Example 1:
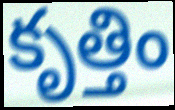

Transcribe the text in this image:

కృత్తిం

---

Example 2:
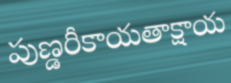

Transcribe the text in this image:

పుణ్డరీకాయతాక్షాయ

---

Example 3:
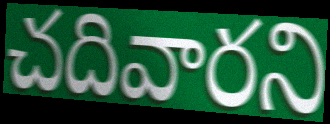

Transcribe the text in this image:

చదివారని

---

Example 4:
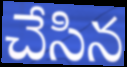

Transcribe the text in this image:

చేసిన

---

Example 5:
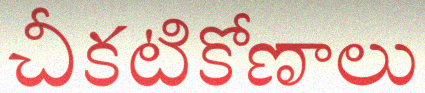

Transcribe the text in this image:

చీకటికోణాలు